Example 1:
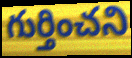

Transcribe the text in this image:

గుర్తించని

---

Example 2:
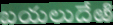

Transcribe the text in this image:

బయలుదేఱి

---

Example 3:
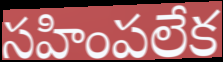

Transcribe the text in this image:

సహింపలేక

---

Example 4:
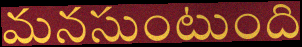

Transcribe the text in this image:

మనసుంటుంది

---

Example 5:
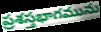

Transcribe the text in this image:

ప్రశస్తభాగమును